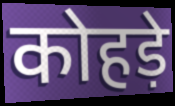
कोहड़े